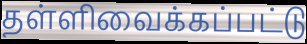
தள்ளிவைக்கப்பட்டு